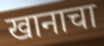
खानाचा